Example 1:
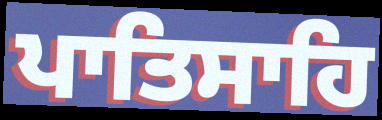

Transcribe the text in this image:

ਪਾਤਿਸਾਹਿ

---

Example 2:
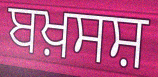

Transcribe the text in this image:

ਬਖ਼ਸਸ਼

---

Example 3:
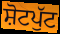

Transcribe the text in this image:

ਸ਼ੋਟਪੁੱਟ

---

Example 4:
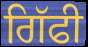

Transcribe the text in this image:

ਗਿੱਫੀ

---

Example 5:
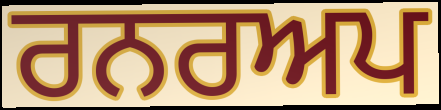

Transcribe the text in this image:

ਰਨਰਅਪ